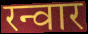
रन्वार